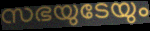
സഭയുടേയും